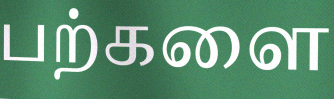
பற்களை